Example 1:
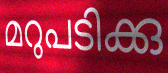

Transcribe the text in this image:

മറുപടിക്കു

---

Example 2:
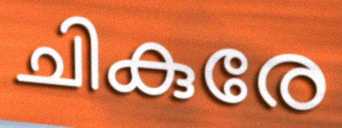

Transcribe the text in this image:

ചികുരേ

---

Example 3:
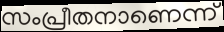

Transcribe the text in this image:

സംപ്രീതനാണെന്ന്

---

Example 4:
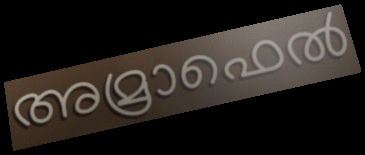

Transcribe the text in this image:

അമ്രാഫെൽ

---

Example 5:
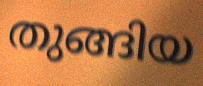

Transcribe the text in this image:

തുങ്ങിയ